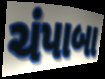
ચંપાબા